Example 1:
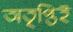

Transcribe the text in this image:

অতৃপ্তিই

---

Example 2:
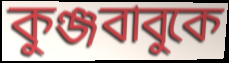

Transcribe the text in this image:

কুঞ্জবাবুকে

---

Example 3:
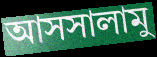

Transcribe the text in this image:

আসসালামু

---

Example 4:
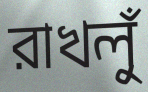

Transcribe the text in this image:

রাখলুঁ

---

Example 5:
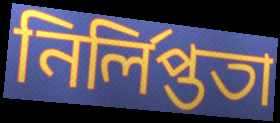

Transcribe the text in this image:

নির্লিপ্ততা